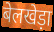
बेलखेड़ा